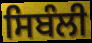
ਸਿਬੰਲੀ